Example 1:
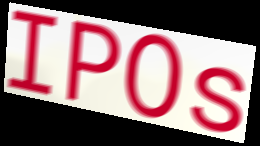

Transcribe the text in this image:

IPOs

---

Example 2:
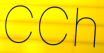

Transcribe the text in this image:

CCh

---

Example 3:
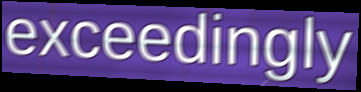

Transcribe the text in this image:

exceedingly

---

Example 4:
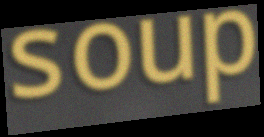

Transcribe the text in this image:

soup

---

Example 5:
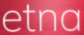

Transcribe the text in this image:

etna